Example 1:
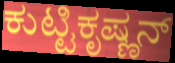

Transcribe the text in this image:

ಕುಟ್ಟಿಕೃಷ್ಣನ್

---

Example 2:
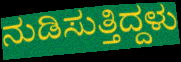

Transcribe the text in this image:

ನುಡಿಸುತ್ತಿದ್ದಳು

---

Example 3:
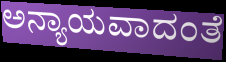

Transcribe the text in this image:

ಅನ್ಯಾಯವಾದಂತೆ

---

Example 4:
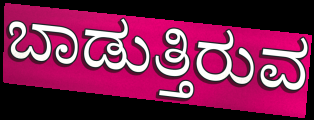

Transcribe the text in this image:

ಬಾಡುತ್ತಿರುವ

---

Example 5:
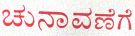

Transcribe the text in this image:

ಚುನಾವಣೆಗೆ